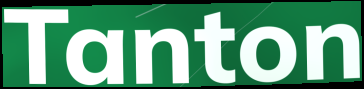
Tanton